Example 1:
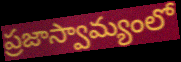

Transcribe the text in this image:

ప్రజాస్వామ్యంలో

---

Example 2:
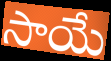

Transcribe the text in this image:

సాయే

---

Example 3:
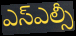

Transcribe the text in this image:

ఎస్ఎల్సీ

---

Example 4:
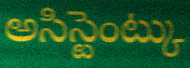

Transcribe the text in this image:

అసిస్టెంట్కు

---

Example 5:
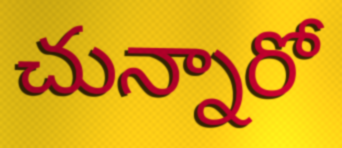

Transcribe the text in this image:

చున్నారో